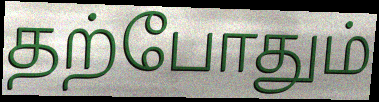
தற்போதும்